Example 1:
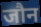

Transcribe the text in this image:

जौन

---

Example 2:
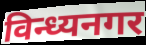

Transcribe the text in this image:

विन्ध्यनगर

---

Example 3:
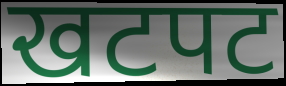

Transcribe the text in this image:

खटपट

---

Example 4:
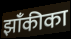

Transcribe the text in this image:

झाँकीका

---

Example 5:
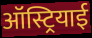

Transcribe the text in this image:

ऑस्ट्रियाई